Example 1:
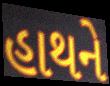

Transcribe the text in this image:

હાથને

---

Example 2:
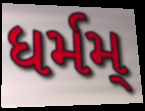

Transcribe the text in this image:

ધર્મમ્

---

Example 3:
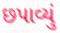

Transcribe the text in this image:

છપાવ્યું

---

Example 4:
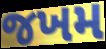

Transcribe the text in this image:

જખમ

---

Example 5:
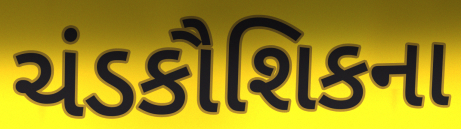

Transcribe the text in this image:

ચંડકૌશિકના